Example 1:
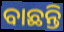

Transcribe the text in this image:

ବାଛନ୍ତି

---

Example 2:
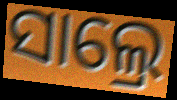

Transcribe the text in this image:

ସାଲ୍ରେ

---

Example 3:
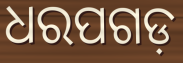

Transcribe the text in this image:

ଧରପଗଡ଼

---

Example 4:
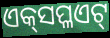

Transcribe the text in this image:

ଏକ୍‍ସପ୍ଳଏଟ୍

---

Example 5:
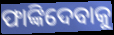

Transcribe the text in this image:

ଫାଙ୍କିଦେବାକୁ